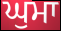
ਘੁਮਾ